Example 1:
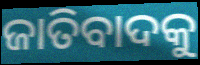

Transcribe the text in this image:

ଜାତିବାଦକୁ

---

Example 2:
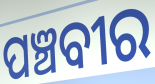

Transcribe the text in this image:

ପଞ୍ଚବୀର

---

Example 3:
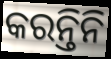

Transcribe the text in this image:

କରନ୍ତିନି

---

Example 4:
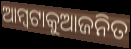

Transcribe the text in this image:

ଆମ୍ବଟାକୁଆଜନିତ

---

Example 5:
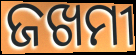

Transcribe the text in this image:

ଜଖମୀ